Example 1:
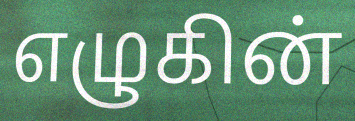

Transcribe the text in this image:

எழுகின்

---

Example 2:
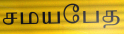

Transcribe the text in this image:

சமயபேத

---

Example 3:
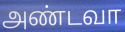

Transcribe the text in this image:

அண்டவா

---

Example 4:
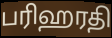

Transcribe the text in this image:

பரிஹரதி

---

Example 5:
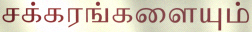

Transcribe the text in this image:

சக்கரங்களையும்